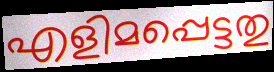
എളിമപ്പെട്ടതു